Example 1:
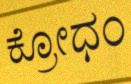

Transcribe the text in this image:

ಕ್ರೋಧಂ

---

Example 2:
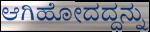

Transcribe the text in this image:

ಆಗಿಹೋದದ್ದನ್ನು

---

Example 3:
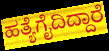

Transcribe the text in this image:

ಹತ್ಯೆಗೈದಿದ್ದಾರೆ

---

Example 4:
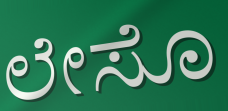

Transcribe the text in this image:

ಲೇಸೊ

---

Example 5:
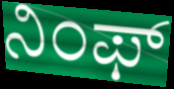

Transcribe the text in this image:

ನಿಂಫ್